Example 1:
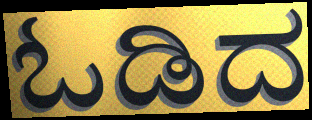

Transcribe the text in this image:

ಓಡಿದ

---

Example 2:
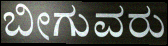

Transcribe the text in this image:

ಬೀಗುವರು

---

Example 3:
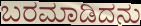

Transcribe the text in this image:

ಬರಮಾಡಿದನು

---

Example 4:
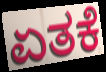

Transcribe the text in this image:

ಏತಕೆ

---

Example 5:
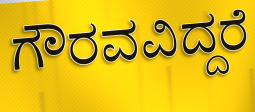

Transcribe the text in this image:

ಗೌರವವಿದ್ದರೆ